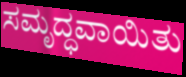
ಸಮೃದ್ಧವಾಯಿತು